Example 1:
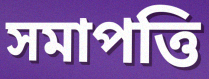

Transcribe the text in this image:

সমাপত্তি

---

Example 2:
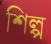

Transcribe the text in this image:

শিল্প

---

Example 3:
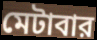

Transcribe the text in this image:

মেটাবার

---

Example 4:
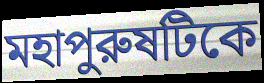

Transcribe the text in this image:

মহাপুরুষটিকে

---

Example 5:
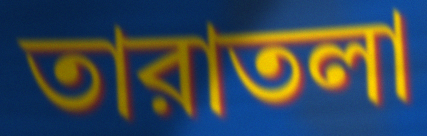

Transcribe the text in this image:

তারাতলা